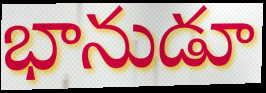
భానుడూ